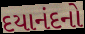
દયાનંદનો